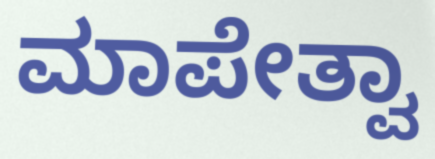
ಮಾಪೇತ್ವಾ